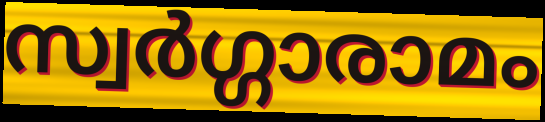
സ്വർഗ്ഗാരാമം